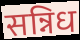
सन्निध